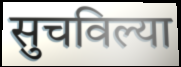
सुचविल्या